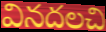
వినదలచి